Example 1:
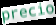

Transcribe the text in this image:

precio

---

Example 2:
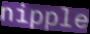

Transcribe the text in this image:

nipple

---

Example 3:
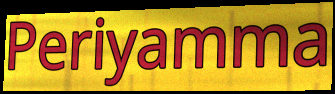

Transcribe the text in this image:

Periyamma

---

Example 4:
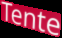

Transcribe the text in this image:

Tente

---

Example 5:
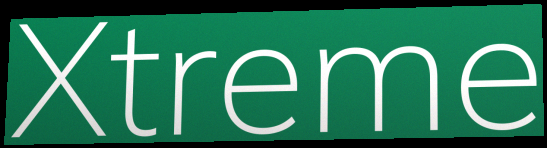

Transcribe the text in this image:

Xtreme